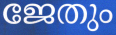
ജേതും